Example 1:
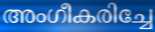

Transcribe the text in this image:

അംഗീകരിച്ചേ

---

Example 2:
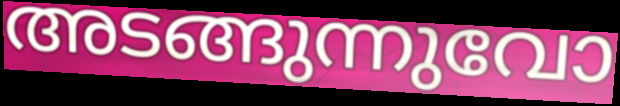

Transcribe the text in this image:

അടങ്ങുന്നുവോ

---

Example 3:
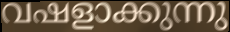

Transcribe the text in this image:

വഷളാക്കുന്നു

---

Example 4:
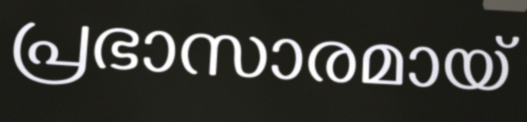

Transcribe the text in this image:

പ്രഭാസാരമായ്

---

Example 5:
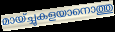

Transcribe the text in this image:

മായ്ച്ചുകളയാനൊത്തു